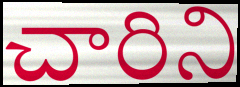
చారిని